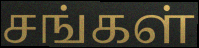
சங்கள்